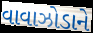
વાવાઝોડાને